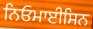
ਨਿਓਮਾਈਸਿਨ